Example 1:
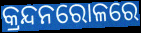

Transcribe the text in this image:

କ୍ରନ୍ଦନରୋଳରେ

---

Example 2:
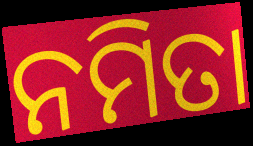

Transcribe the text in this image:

ନମିତା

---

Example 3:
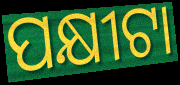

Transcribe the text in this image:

ପକ୍ଷୀଟା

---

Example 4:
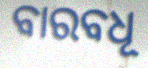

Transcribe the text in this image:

ବାରବଧୂ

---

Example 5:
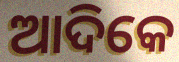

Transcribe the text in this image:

ଆଦିକେ